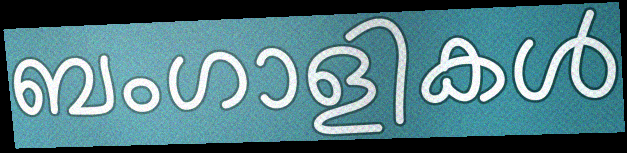
ബംഗാളികൾ